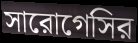
সারোগেসির